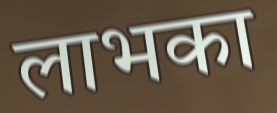
लाभका